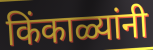
किंकाळ्यांनी